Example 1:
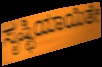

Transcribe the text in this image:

ಸೃಷ್ಟಿಯಾಯಿತೇ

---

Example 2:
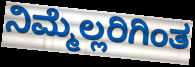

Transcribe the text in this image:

ನಿಮ್ಮೆಲ್ಲರಿಗಿಂತ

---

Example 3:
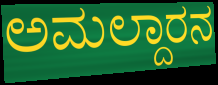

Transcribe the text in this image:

ಅಮಲ್ದಾರನ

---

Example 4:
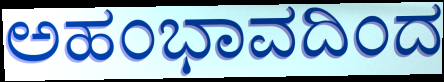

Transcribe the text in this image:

ಅಹಂಭಾವದಿಂದ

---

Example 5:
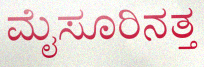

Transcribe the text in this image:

ಮೈಸೂರಿನತ್ತ